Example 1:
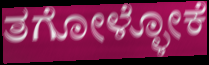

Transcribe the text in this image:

ತಗೋಳ್ಳೋಕೆ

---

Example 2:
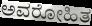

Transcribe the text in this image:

ಅವರೋಹಿತ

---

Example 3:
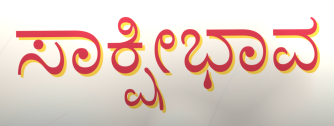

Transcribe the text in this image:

ಸಾಕ್ಷೀಭಾವ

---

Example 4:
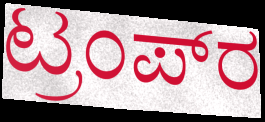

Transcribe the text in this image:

ಟ್ರಂಪ್‍ರ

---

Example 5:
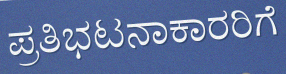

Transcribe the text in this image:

ಪ್ರತಿಭಟನಾಕಾರರಿಗೆ